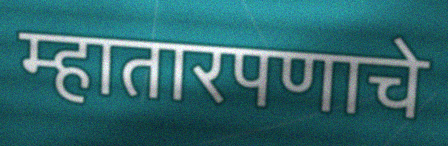
म्हातारपणाचे